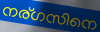
നര്ഗസിനെ